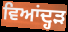
ਵਿਆਂਦ੍ਹੜ